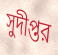
সুদীপ্তর